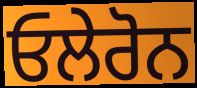
ਓਲੇਰੋਨ